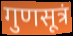
गुणसूत्रं